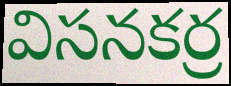
విసనకర్ర